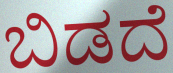
ಬಿಡದೆ